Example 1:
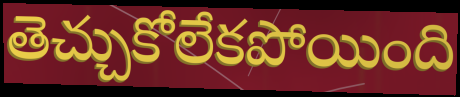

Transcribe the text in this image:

తెచ్చుకోలేకపోయింది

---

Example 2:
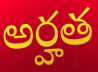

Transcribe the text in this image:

అర్హత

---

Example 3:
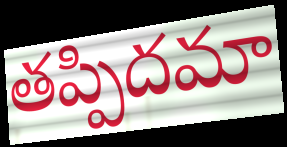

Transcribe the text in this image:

తప్పిదమా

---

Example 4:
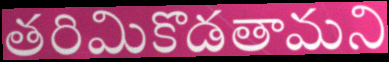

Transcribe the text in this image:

తరిమికొడతామని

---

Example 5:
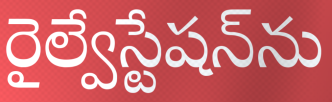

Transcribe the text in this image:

రైల్వేస్టేషన్‌ను